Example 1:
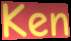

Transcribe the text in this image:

Ken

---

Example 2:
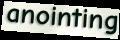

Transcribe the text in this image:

anointing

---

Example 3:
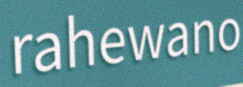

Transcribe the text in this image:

rahewano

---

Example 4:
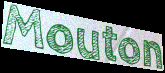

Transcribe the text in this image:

Mouton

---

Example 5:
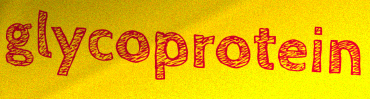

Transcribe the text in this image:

glycoprotein